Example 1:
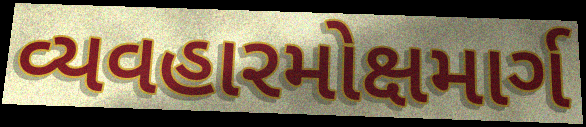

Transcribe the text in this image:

વ્યવહારમોક્ષમાર્ગ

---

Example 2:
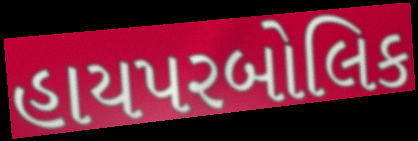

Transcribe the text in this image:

હાયપરબોલિક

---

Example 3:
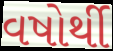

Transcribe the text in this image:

વષોર્થી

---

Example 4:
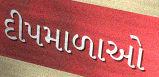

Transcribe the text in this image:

દીપમાળાઓ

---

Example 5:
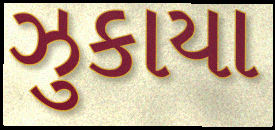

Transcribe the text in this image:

ઝુકાયા